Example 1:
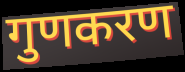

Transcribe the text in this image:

गुणकरण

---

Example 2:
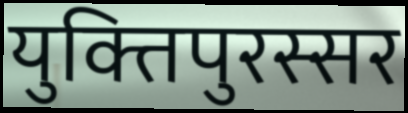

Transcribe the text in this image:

युक्तिपुरस्सर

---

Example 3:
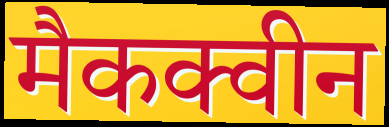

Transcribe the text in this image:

मैकक्वीन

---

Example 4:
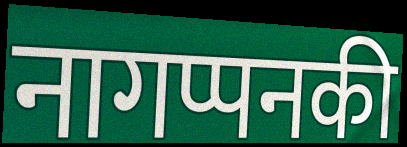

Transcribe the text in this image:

नागप्पनकी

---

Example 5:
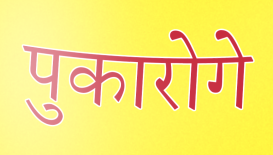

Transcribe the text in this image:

पुकारोगे